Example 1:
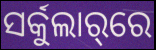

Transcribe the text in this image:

ସର୍କୁଲାର୍‌ରେ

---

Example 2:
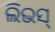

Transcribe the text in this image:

ଲିଭସ୍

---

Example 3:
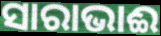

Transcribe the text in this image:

ସାରାଭାଈ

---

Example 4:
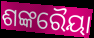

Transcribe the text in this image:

ଶଙ୍କରୈୟା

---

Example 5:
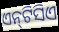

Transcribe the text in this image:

ଏନ୍‌ଟିସିଏ